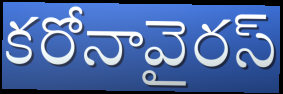
కరోనావైరస్